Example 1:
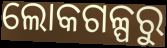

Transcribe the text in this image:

ଲୋକଗଳ୍ପରୁ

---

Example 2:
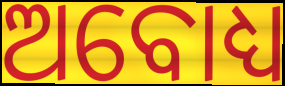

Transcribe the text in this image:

ଅବୋଧ୍ୟ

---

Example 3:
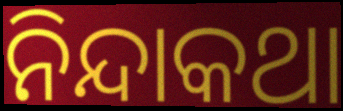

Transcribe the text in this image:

ନିନ୍ଦାକଥା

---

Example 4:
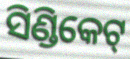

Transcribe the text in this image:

ସିଣ୍ଡିକେଟ୍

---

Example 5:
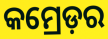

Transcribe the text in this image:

କମ୍ରେଡ଼ର